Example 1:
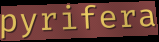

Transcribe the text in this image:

pyrifera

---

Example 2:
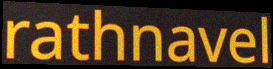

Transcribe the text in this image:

rathnavel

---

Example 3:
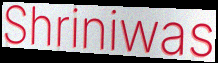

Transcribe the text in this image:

Shriniwas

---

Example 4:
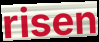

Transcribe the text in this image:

risen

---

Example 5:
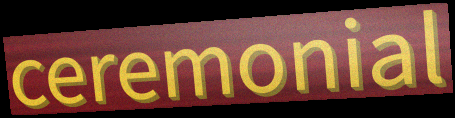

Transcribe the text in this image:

ceremonial